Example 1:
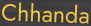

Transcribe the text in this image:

Chhanda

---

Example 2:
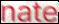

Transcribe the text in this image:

nate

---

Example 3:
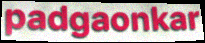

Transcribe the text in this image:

padgaonkar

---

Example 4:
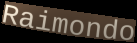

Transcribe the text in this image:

Raimondo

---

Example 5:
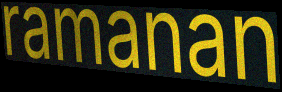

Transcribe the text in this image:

ramanan